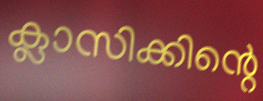
ക്ലാസിക്കിന്റെ